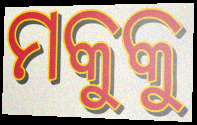
ମକୁକୁ